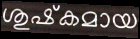
ശുഷ്‌കമായ